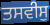
ਤਸਵੀਸੁ